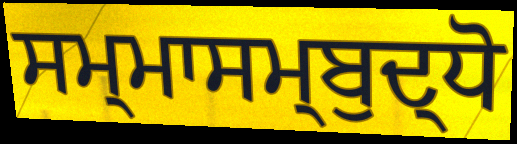
ਸਮ੍ਮਾਸਮ੍ਬੁਦ੍ਧੋ